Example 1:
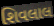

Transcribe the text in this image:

શિવલાલ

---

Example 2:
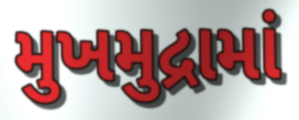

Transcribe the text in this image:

મુખમુદ્રામાં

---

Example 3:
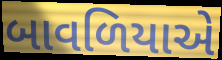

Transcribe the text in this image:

બાવળિયાએ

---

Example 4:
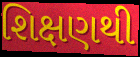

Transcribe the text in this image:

શિક્ષણથી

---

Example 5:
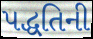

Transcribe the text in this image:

પદ્ધતિની